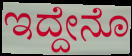
ಇದ್ದೇನೊ